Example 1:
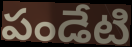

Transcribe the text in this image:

పండేటి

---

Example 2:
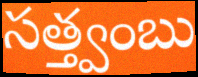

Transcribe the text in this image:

సత్త్వంబు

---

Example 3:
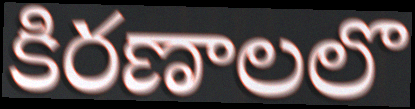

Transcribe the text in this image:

కిరణాలలొ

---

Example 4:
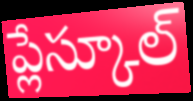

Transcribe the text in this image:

ప్లేస్కూల్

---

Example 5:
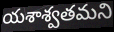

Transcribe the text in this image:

యశాశ్వతమని